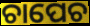
ଚାପେଚ